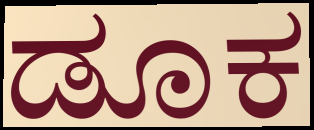
ಡೂಕ